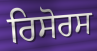
ਰਿਸੋਰਸ